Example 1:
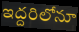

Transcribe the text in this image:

ఇద్దరిలోనూ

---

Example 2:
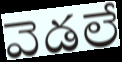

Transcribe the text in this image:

వెడలే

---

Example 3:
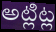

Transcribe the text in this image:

అట్లిట్ల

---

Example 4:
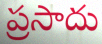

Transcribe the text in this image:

ప్రసాదు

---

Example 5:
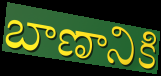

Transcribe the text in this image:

బాణానికి